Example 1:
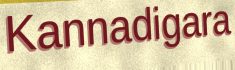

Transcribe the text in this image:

Kannadigara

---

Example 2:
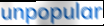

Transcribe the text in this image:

unpopular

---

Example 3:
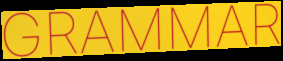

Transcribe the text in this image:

GRAMMAR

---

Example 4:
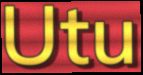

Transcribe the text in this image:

Utu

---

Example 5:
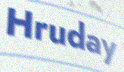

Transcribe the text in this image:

Hruday